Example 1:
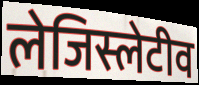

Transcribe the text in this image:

लेजिस्लेटीव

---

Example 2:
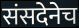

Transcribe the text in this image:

संसदेनेच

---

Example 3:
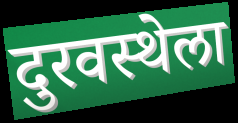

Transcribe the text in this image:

दुरवस्थेला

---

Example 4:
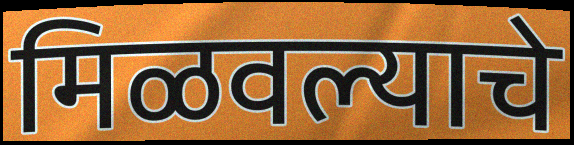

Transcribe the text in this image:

मिळवल्याचे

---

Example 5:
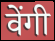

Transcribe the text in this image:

वेंगी